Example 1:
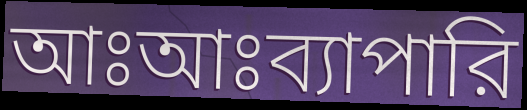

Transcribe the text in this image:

আঃআঃব্যাপারি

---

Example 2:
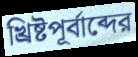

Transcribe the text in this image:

খ্রিষ্টপূর্বাব্দের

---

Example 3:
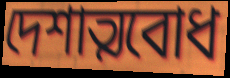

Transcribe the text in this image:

দেশাত্মবোধ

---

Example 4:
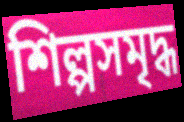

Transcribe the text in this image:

শিল্পসমৃদ্ধ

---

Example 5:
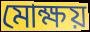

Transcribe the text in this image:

মোক্ষয়